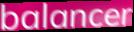
balancer